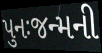
પુનઃજન્મની